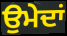
ਉਮੇਦਾਂ